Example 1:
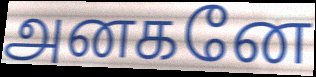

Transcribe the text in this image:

அனகனே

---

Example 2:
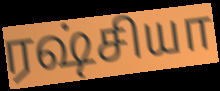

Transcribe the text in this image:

ரஷ்சியா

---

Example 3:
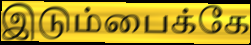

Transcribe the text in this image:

இடும்பைக்கே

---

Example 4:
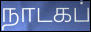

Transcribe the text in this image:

நாடகப்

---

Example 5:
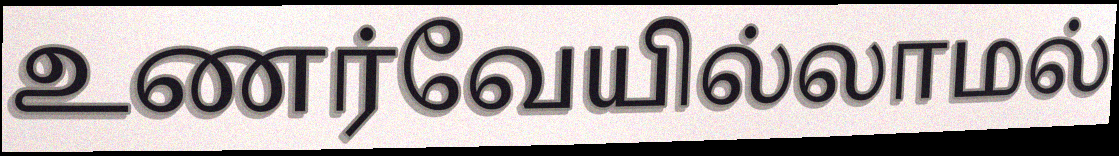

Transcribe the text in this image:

உணர்வேயில்லாமல்